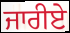
ਜਾਰੀਏ